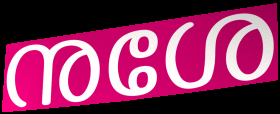
നുശേ